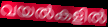
വയൽകളിൽ